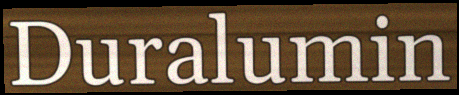
Duralumin